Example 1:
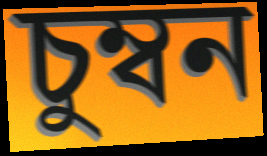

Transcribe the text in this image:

চুম্বন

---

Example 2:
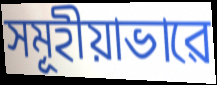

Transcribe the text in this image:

সমূহীয়াভাৱে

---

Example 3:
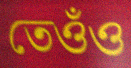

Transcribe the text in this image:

তেওঁও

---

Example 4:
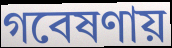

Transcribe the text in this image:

গবেষণায়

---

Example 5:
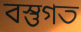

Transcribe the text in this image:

বস্তুগত